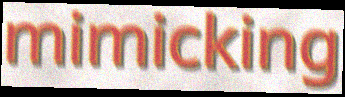
mimicking